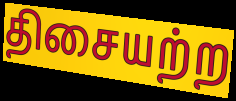
திசையற்ற